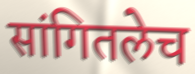
सांगितलेच